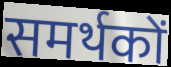
समर्थकों